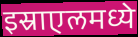
इस्राएलमध्ये